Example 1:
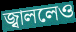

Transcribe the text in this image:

জ্বাললেও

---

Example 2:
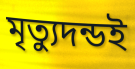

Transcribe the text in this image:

মৃত্যুদন্ডই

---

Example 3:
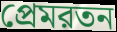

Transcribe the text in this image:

প্রেমরতন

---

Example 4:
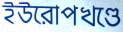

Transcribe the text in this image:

ইউরোপখণ্ডে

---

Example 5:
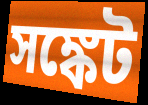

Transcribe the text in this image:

সঙ্কেট